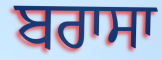
ਬਰਾਸਾ